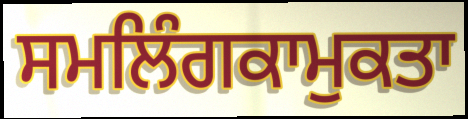
ਸਮਲਿੰਗਕਾਮੁਕਤਾ